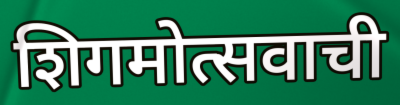
शिगमोत्सवाची